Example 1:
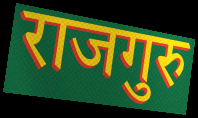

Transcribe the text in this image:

राजगुरु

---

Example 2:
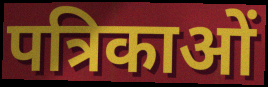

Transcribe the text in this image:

पत्रिकाओं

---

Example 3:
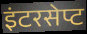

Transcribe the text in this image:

इंटरसेप्‍ट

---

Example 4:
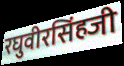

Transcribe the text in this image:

रघुवीरसिंहजी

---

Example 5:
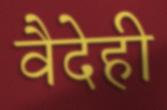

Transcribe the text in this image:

वैदेही